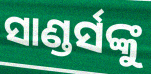
ସାଣ୍ଡର୍ସଙ୍କୁ